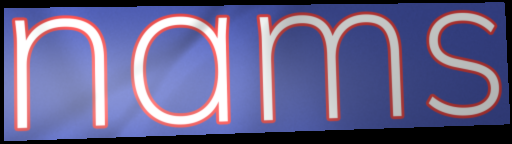
nams